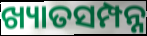
ଖ୍ୟାତସମ୍ପନ୍ନ